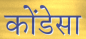
कोंडेसा